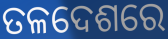
ତଳଦେଶରେ